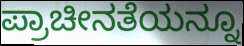
ಪ್ರಾಚೀನತೆಯನ್ನೂ